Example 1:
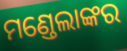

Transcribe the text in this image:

ମଣ୍ଡେଲାଙ୍କର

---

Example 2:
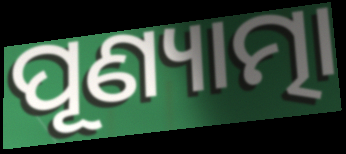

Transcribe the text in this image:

ପୂଣ୍ୟାତ୍ମା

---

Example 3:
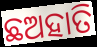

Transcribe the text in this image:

ଛଅହାତି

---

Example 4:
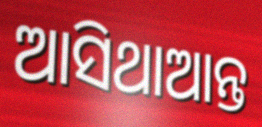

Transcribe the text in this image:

ଆସିଥାଆନ୍ତ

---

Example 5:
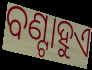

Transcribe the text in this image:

ବଣ୍ଟାହୁଏ